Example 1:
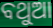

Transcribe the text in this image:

ବଥୁଆ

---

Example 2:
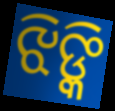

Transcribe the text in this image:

ଝିଙ୍କି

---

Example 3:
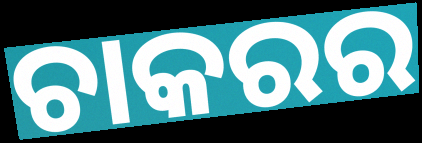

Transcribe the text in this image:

ଚାକରର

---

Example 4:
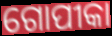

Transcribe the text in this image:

ଗୋପୀକା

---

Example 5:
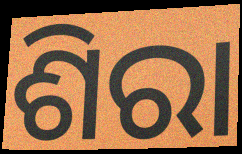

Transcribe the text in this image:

ଶିରା